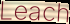
Leach